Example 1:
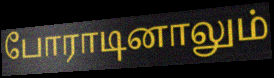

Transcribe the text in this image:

போராடினாலும்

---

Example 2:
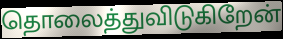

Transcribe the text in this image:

தொலைத்துவிடுகிறேன்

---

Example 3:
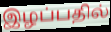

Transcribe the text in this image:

இழப்பதில்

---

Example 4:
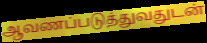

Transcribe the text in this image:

ஆவணப்படுத்துவதுடன்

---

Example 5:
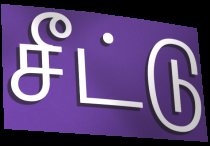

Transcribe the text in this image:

சீட்டு